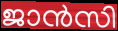
ജാൻസി